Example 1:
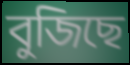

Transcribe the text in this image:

বুজিছে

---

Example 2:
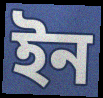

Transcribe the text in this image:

ইন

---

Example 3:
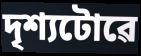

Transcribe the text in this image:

দৃশ্যটোৱে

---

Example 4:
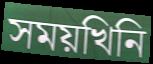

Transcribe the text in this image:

সময়খিনি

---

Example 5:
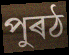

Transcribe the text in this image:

পুৰঠ